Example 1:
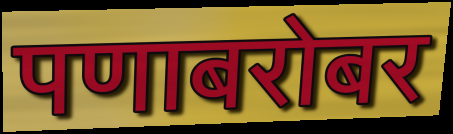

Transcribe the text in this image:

पणाबरोबर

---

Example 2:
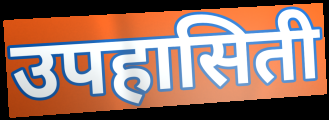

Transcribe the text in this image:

उपहासिती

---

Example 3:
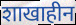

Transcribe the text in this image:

शाखाहीन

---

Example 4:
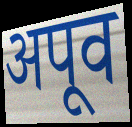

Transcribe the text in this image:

अपूव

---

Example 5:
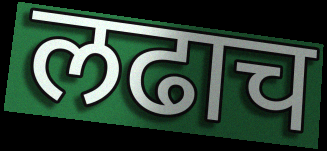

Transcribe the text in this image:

लढाच